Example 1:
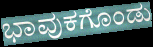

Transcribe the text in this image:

ಭಾವುಕಗೊಂಡು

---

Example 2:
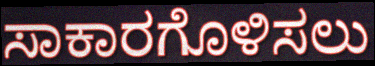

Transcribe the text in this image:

ಸಾಕಾರಗೊಳಿಸಲು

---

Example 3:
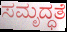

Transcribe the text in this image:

ಸಮೃದ್ಧತೆ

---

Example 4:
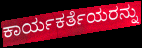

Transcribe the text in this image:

ಕಾರ್ಯಕರ್ತೆಯರನ್ನು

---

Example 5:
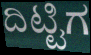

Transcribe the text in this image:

ದಿಟ್ಟಿಗ